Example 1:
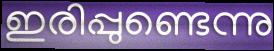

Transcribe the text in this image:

ഇരിപ്പുണ്ടെന്നു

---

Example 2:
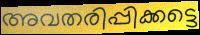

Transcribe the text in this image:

അവതരിപ്പിക്കട്ടെ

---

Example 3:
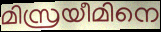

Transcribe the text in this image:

മിസ്രയീമിനെ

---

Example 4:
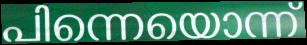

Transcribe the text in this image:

പിന്നെയൊന്ന്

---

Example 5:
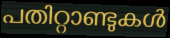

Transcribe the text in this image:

പതിറ്റാണ്ടുകൾ